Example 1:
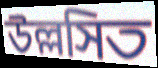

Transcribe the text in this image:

উল্লসিত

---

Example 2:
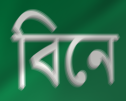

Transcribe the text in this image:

বিনে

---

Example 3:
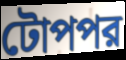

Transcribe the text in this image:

টোপপর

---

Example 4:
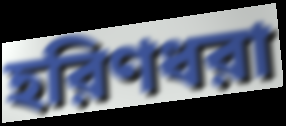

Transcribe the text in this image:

হরিণধরা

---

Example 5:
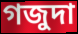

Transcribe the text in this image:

গজুদা